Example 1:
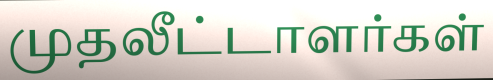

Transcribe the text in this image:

முதலீட்டாளர்கள்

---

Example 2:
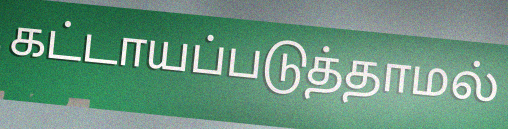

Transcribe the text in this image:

கட்டாயப்படுத்தாமல்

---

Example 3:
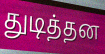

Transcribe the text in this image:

துடித்தன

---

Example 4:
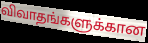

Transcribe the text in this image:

விவாதங்களுக்கான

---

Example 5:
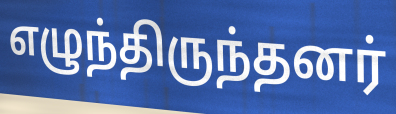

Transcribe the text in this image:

எழுந்திருந்தனர்